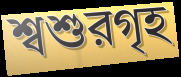
শ্বশুরগৃহ